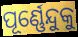
ପୂର୍ଣ୍ଣେନ୍ଦୁକୁ